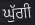
ਘੁੱਗੀ